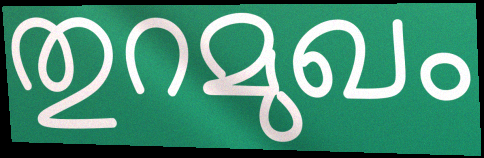
തുറമുഖം